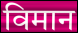
विमान